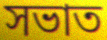
সভাত